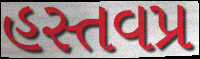
હસ્તવપ્ર